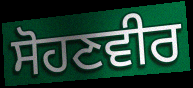
ਸੋਹਣਵੀਰ